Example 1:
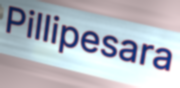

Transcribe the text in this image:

Pillipesara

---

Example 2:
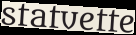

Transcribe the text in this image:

statuette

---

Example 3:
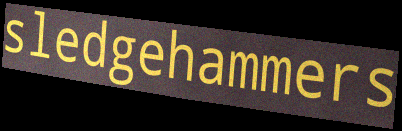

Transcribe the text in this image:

sledgehammers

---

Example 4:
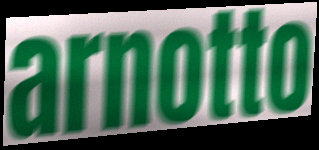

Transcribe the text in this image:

arnotto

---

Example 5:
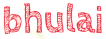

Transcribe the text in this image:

bhulai